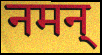
नमन्